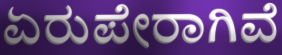
ಏರುಪೇರಾಗಿವೆ